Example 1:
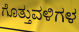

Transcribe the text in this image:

ಗೊತ್ತುವಳಿಗಳ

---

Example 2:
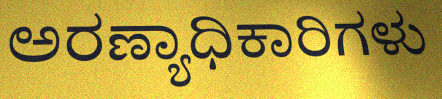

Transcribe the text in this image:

ಅರಣ್ಯಾಧಿಕಾರಿಗಳು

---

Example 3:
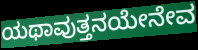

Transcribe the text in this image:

ಯಥಾವುತ್ತನಯೇನೇವ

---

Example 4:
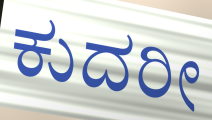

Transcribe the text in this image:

ಕುದರೀ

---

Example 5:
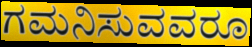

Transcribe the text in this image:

ಗಮನಿಸುವವರೂ